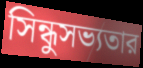
সিন্ধুসভ্যতার